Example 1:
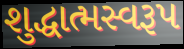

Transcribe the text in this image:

શુદ્ધાત્મસ્વરૂપ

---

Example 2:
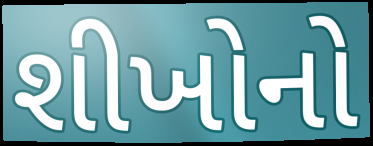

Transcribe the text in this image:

શીખોનો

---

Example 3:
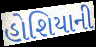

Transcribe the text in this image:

હોશિયાની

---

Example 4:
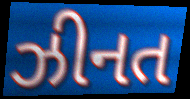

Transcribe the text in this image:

ઝીનત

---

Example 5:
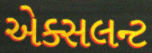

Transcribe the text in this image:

એક્સલન્ટ